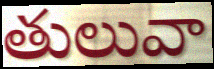
తులువా